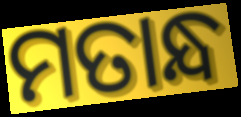
ମତାନ୍ଧ